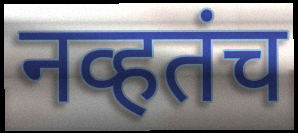
नव्हतंच